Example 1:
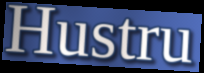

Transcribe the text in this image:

Hustru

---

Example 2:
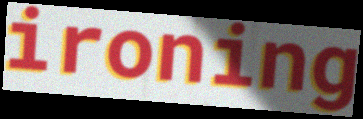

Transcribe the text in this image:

ironing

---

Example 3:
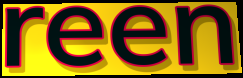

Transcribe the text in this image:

reen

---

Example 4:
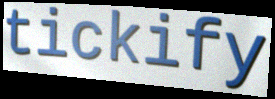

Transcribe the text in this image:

tickify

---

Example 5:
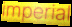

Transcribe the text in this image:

imperial